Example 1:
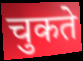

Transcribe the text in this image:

चुकते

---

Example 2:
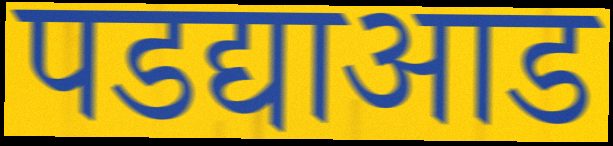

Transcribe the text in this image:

पडद्याआड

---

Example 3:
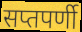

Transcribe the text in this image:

सप्तपर्णी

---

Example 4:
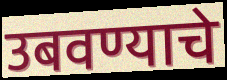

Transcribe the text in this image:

उबवण्याचे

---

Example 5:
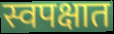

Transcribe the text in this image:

स्वपक्षात